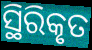
ସ୍ଥିରିକୃତ